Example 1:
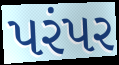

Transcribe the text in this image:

પરંપર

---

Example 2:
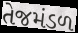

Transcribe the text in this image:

તેજમંડળ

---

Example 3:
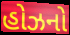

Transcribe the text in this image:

હોઝનો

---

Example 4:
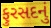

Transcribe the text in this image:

ફુરસદનું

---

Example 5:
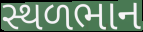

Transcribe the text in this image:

સ્થળભાન